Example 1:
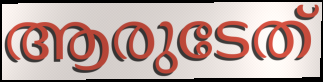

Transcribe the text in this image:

ആരുടേത്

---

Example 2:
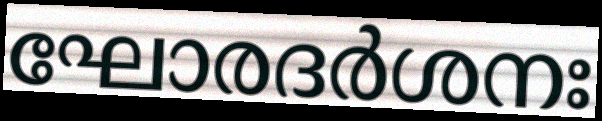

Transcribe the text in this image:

ഘോരദർശനഃ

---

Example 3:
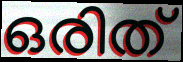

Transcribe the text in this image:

ഒരിത്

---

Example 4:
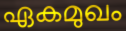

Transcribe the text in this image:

ഏകമുഖം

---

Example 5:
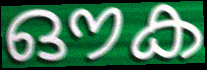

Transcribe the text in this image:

ഔക